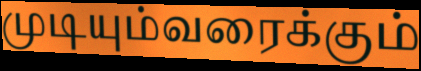
முடியும்வரைக்கும்